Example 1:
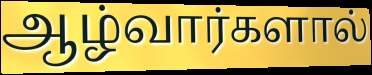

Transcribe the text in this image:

ஆழ்வார்களால்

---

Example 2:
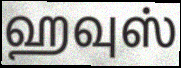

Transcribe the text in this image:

ஹவுஸ்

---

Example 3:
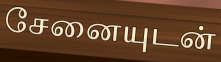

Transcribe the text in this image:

சேனையுடன்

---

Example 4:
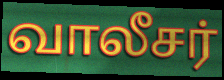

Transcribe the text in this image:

வாலீசர்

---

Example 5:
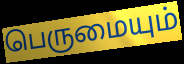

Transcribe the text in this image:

பெருமையும்